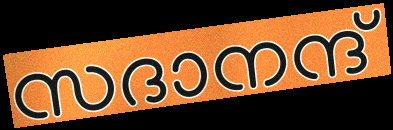
സദാനന്ദ്